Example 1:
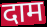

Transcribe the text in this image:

दाम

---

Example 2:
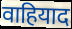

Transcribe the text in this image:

वाहियाद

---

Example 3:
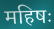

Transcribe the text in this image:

महिषः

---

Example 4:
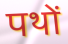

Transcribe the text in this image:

पथों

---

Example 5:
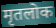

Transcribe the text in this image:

मृतलोक